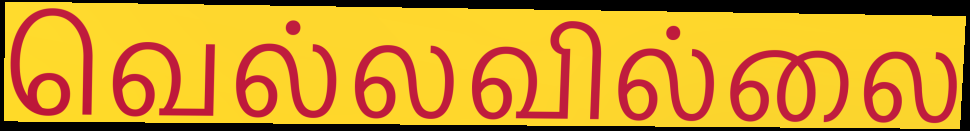
வெல்லவில்லை